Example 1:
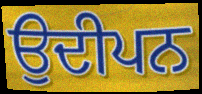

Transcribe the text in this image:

ਉਦੀਪਨ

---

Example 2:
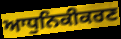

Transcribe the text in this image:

ਆਧੁਨਿਕੀਕਰਣ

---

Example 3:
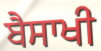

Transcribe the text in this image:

ਬੈਸਾਖੀ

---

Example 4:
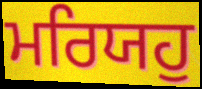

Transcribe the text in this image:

ਮਰਿਯਹੁ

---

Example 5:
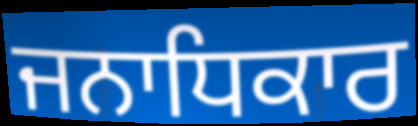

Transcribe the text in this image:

ਜਨਾਧਿਕਾਰ